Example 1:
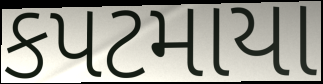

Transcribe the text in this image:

કપટમાયા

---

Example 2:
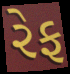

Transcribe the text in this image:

રેફ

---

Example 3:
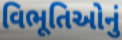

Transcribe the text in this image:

વિભૂતિઓનું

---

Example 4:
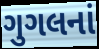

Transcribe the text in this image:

ગુગલનાં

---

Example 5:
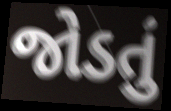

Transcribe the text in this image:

જોડતું